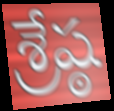
శ్రేష్ఠ